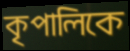
কৃপালিকে